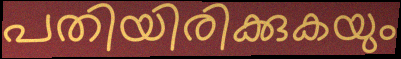
പതിയിരിക്കുകയും